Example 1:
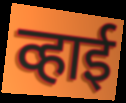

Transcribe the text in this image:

व्हाई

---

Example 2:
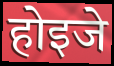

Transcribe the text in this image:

होइजे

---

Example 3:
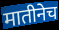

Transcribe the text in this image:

मातीनेच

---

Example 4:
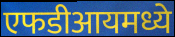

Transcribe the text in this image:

एफडीआयमध्ये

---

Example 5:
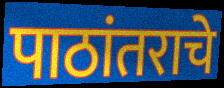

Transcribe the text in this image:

पाठांतराचे